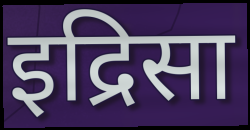
इद्रिसा